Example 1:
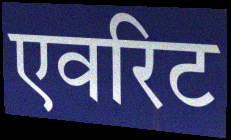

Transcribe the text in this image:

एवरिट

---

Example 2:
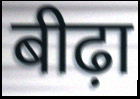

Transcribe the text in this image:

बीढ़ा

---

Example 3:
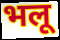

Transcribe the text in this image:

भलू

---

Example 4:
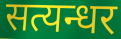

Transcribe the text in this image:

सत्यन्धर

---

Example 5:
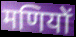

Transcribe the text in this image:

मणियों